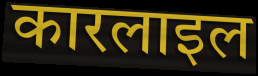
कारलाइल